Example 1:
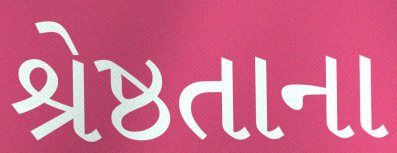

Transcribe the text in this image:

શ્રેષ્ઠતાના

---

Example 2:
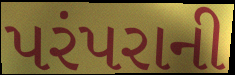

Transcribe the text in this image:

પરંપરાની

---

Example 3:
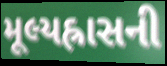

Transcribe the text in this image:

મૂલ્યહ્રાસની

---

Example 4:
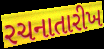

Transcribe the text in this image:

રચનાતારીખ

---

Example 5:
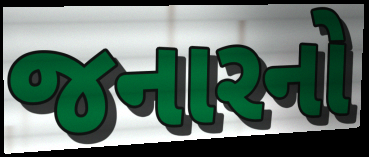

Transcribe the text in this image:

જનારનો